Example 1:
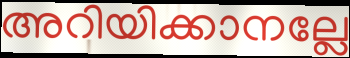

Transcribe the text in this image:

അറിയിക്കാനല്ലേ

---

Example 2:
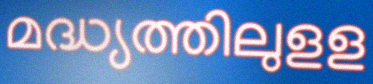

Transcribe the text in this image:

മദ്ധ്യത്തിലുളള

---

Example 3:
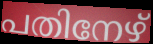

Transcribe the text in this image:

പതിനേഴ്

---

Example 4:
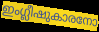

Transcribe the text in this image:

ഇംഗ്ലീഷുകാരനോ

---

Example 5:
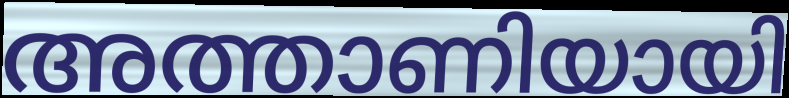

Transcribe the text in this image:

അത്താണിയായി